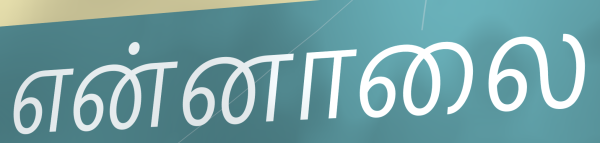
என்னாலை